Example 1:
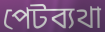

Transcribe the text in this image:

পেটব্যথা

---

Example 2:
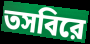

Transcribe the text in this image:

তসবিরে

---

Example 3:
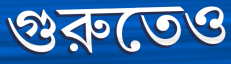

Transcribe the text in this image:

গুরুতেও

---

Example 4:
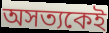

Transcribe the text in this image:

অসত্যকেই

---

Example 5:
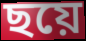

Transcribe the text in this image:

ছয়ে